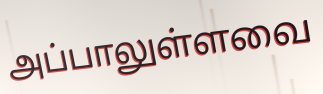
அப்பாலுள்ளவை